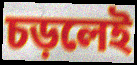
চড়লেই